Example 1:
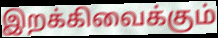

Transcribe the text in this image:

இறக்கிவைக்கும்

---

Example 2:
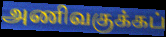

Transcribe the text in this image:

அணிவகுக்கப்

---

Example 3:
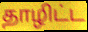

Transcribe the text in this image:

தாழிட்ட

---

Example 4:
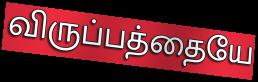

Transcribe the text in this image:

விருப்பத்தையே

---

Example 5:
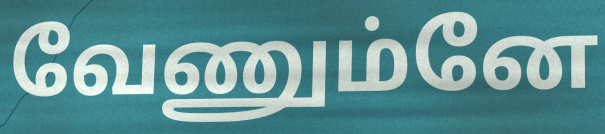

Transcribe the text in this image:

வேணும்னே